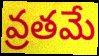
వ్రతమే